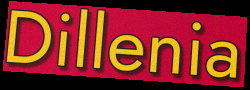
Dillenia